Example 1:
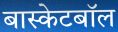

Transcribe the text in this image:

बास्केटबॉल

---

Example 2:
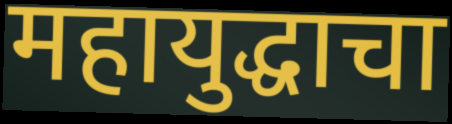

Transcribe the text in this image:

महायुद्धाचा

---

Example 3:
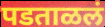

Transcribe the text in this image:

पडताळलं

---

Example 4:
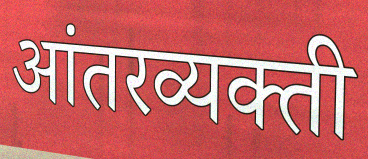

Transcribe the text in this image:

आंतरव्यक्ती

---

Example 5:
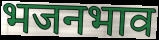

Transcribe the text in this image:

भजनभाव